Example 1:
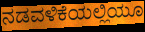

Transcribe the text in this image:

ನಡವಳಿಕೆಯಲ್ಲಿಯೂ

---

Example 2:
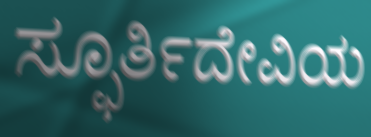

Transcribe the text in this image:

ಸ್ಫೂರ್ತಿದೇವಿಯ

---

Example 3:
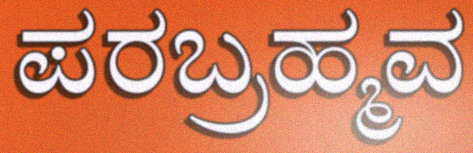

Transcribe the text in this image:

ಪರಬ್ರಹ್ಮವ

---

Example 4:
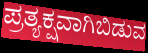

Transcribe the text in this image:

ಪ್ರತ್ಯಕ್ಷವಾಗಿಬಿಡುವ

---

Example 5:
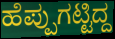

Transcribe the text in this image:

ಹೆಪ್ಪುಗಟ್ಟಿದ್ದ